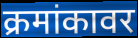
क्रमांकावर